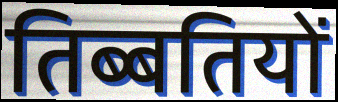
तिब्बतियों